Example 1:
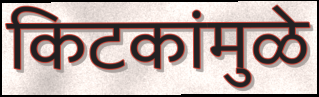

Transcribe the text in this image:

किटकांमुळे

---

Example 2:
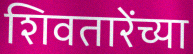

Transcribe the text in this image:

शिवतारेंच्या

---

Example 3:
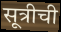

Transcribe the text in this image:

सूत्रीची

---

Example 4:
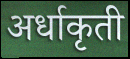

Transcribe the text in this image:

अर्धाकृती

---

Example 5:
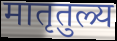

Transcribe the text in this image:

मातृतुल्य